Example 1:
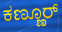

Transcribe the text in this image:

ಕಣ್ಣೂರ್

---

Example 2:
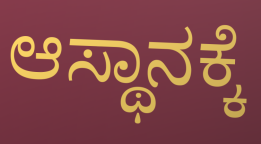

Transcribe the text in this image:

ಆಸ್ಥಾನಕ್ಕೆ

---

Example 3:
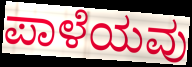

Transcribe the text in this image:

ಪಾಳೆಯವು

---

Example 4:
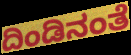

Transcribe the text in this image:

ದಿಂಡಿನಂತೆ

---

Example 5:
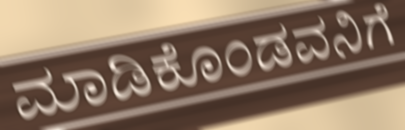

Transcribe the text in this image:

ಮಾಡಿಕೊಂಡವನಿಗೆ